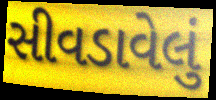
સીવડાવેલું